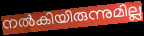
നൽകിയിരുന്നുമില്ല